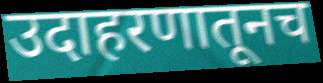
उदाहरणातूनच